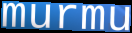
murmu